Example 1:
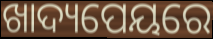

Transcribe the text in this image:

ଖାଦ୍ୟପେୟରେ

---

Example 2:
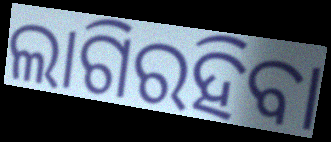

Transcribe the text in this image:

ଲାଗିରହିବା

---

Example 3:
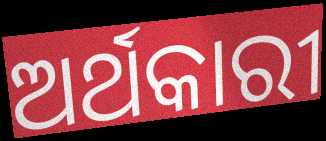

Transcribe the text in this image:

ଅର୍ଥକାରୀ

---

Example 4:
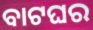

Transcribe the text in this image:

ବାଟଘର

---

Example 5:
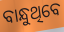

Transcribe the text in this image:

ବାନ୍ଧୁଥିବେ